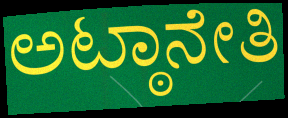
ಅಟ್ಠಾನೇತಿ